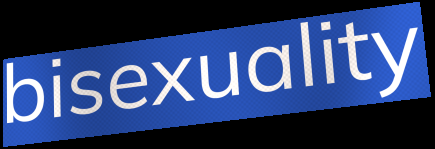
bisexuality